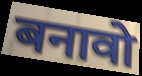
बनावो